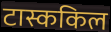
टास्ककिल